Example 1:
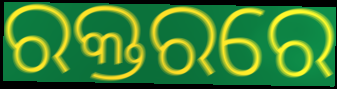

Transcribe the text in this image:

ରକ୍ତରରେ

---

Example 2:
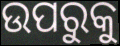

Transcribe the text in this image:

ଉପରୁକୁ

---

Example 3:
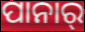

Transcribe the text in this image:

ପାନାର୍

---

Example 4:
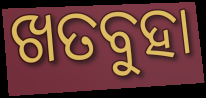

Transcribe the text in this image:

ଖତବୁହା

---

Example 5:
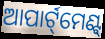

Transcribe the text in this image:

ଆପାର୍ଟ୍‌ମେଣ୍ଟ୍